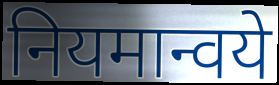
नियमान्वये